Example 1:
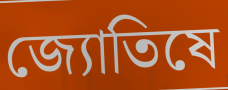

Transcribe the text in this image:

জ্যোতিষে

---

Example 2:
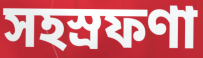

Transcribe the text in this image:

সহস্রফণা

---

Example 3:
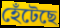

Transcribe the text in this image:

হেঁটেছে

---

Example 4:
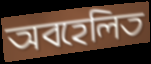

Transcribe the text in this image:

অবহেলিত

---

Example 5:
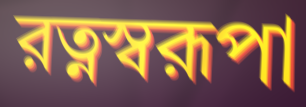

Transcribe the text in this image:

রত্নস্বরূপা